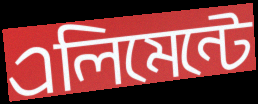
এলিমেন্টে